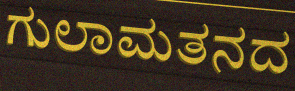
ಗುಲಾಮತನದ